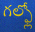
గల్ఫ్లో